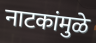
नाटकांमुळे